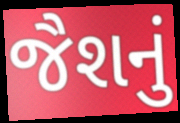
જૈશનું